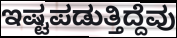
ಇಷ್ಟಪಡುತ್ತಿದ್ದೆವು